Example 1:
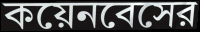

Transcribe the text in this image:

কয়েনবেসের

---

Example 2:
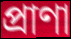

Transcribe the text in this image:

প্রাণা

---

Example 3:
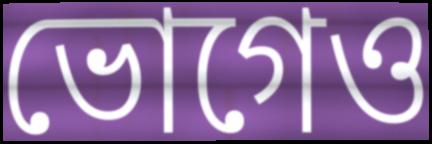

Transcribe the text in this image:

ভোগেও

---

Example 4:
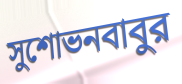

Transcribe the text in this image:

সুশোভনবাবুর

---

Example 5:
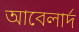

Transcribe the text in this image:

আবেলার্দ